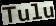
Tulu